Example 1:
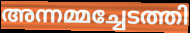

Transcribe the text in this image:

അന്നമ്മച്ചേടത്തി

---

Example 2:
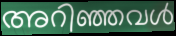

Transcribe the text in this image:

അറിഞ്ഞവൾ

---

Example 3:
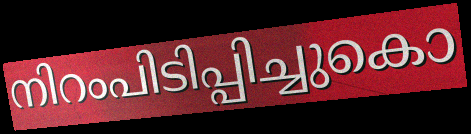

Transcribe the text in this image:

നിറംപിടിപ്പിച്ചുകൊ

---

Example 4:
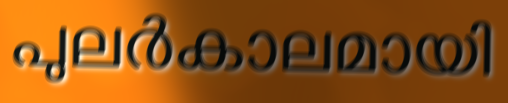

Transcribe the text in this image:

പുലർകാലമായി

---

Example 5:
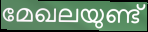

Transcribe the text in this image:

മേഖലയുണ്ട്